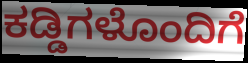
ಕಡ್ಡಿಗಳೊಂದಿಗೆ